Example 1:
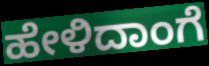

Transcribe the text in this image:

ಹೇಳಿದಾಂಗೆ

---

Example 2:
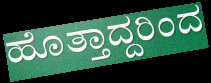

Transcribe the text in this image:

ಹೊತ್ತಾದ್ದರಿಂದ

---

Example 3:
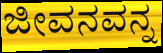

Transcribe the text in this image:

ಜೀವನವನ್ನ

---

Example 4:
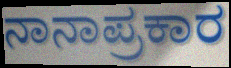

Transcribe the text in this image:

ನಾನಾಪ್ರಕಾರ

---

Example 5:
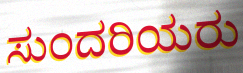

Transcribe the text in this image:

ಸುಂದರಿಯರು